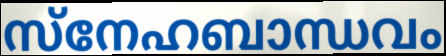
സ്നേഹബാന്ധവം